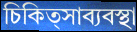
চিকিত্সাব্যবস্থা